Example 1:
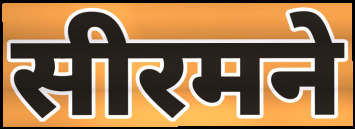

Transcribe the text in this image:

सीरमने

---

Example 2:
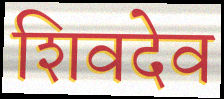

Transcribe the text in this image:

शिवदेव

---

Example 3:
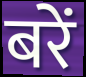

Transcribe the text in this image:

बरें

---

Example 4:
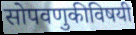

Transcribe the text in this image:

सोपवणुकीविषयी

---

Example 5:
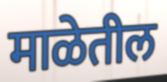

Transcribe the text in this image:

माळेतील